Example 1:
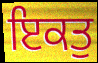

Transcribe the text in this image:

ਇਕਤੁ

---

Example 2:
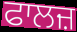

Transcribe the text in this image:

ਫਾਲਜ਼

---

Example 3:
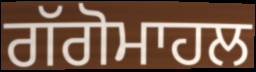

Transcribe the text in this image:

ਗੱਗੋਮਾਹਲ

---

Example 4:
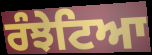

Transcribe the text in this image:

ਰੰਝੇਟਿਆ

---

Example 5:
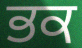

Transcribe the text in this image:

ਭਕ